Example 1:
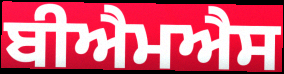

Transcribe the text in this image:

ਬੀਐਮਐਸ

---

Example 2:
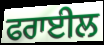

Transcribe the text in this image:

ਫਰਾਈਲ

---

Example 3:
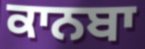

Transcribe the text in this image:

ਕਾਨਬਾ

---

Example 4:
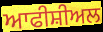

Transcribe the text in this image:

ਆਫੀਸ਼ੀਅਲ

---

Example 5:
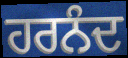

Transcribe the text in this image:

ਹਰਨੰਦ